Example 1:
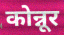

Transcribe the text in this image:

कोन्नूर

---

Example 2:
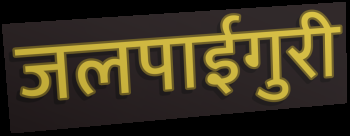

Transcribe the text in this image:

जलपाईगुरी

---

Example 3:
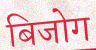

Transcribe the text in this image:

बिजोग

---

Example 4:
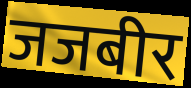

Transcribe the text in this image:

जजबीर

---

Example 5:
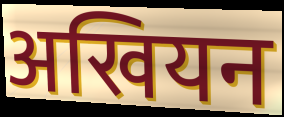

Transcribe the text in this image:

अखियन